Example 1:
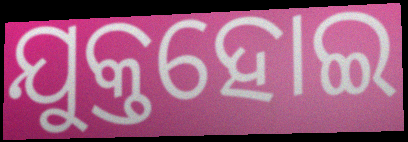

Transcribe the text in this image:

ଯୁକ୍ତହୋଇ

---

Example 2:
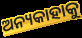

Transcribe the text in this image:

ଅନ୍ୟକାହାକୁ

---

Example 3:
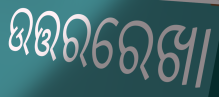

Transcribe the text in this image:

ଉତ୍ତରରେଖା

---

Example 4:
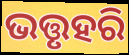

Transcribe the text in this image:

ଭତ୍ତୃହରି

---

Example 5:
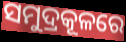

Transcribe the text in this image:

ସମୁଦ୍ରକୂଳରେ